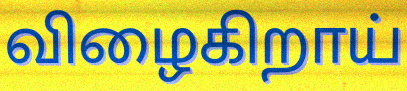
விழைகிறாய்